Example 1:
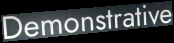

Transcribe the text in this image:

Demonstrative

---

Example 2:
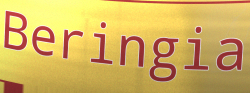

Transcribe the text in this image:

Beringia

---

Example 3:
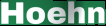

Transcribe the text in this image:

Hoehn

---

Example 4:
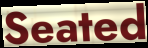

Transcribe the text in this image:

Seated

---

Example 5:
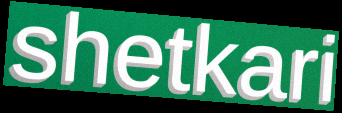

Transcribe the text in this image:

shetkari